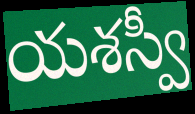
యశస్వీ